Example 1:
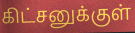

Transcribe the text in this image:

கிட்சனுக்குள்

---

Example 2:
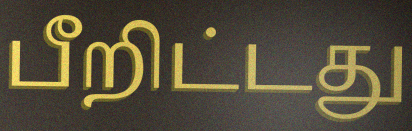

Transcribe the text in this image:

பீறிட்டது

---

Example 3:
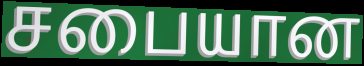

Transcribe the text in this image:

சபையான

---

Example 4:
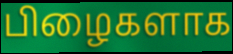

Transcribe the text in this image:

பிழைகளாக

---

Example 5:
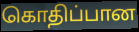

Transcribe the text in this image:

கொதிப்பான